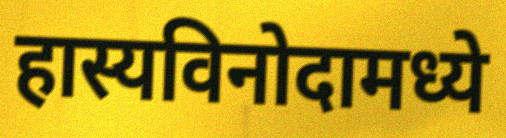
हास्यविनोदामध्ये